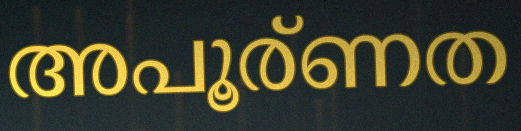
അപൂര്ണത